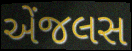
એંજલસ